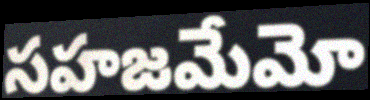
సహజమేమో